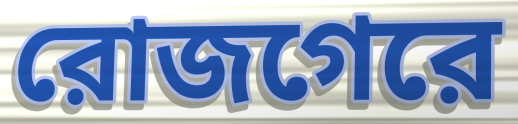
রোজগেরে